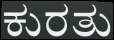
ಕುರತು